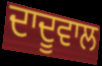
ਦਾਦੂਵਾਲ